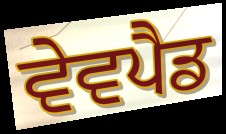
ਵੇਵਪੈਡ